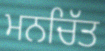
ਮਨਚਿੱਤ